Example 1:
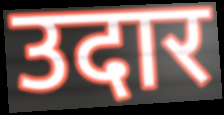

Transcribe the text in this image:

उदार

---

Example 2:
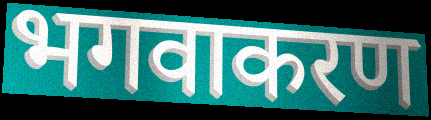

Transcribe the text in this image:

भगवाकरण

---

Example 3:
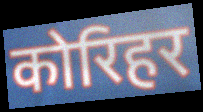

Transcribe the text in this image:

कोरिहर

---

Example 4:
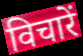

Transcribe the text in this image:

विचारें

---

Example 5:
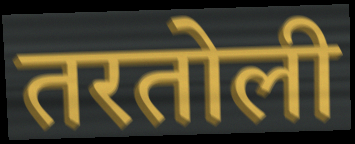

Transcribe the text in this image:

तरतोली